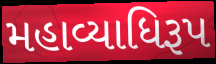
મહાવ્યાધિરૂપ